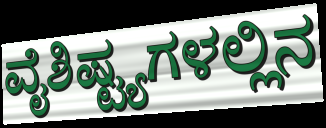
ವೈಶಿಷ್ಟ್ಯಗಳಲ್ಲಿನ